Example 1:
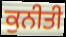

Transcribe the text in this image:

ਕੁਨੀਤੀ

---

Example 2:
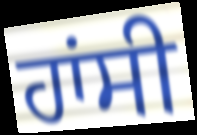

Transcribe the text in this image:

ਹਾਂਸੀ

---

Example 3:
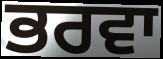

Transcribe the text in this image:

ਭਰਵਾ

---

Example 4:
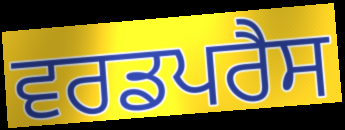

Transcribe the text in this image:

ਵਰਡਪਰੈਸ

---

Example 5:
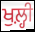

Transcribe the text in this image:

ਖੁਲ਼੍ਹੀ